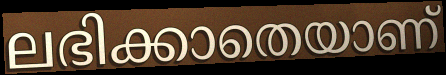
ലഭിക്കാതെയാണ്